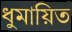
ধুমায়িত